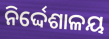
ନିର୍ଦ୍ଦେଶାଳୟ